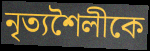
নৃত্যশৈলীকে